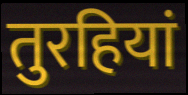
तुरहियां